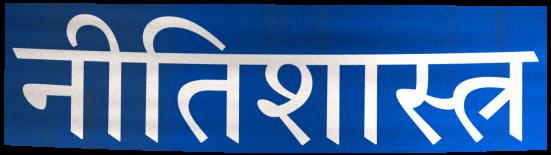
नीतिशास्त्र